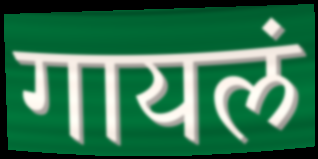
गायलं